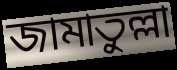
জামাতুল্লা